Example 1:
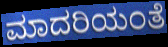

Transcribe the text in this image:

ಮಾದರಿಯಂತೆ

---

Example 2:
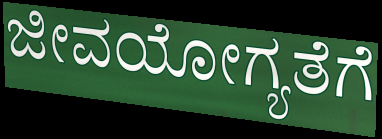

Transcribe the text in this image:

ಜೀವಯೋಗ್ಯತೆಗೆ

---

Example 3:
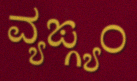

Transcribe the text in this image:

ವ್ಯಙ್ಗ್ಯಂ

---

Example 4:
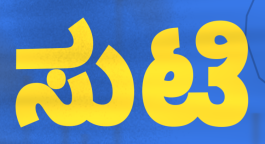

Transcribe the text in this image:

ಸುಟಿ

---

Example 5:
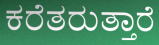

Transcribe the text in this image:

ಕರೆತರುತ್ತಾರೆ